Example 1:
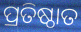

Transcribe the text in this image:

ପ୍ରତିଷ୍ଠାତ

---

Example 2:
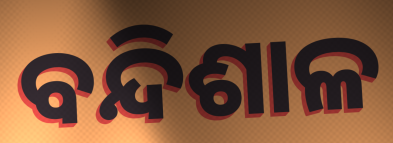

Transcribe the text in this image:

ବନ୍ଦିଶାଳ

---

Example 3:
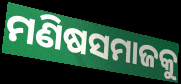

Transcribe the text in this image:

ମଣିଷସମାଜକୁ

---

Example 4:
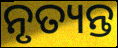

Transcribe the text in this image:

ନୃତ୍ୟନ୍ତ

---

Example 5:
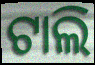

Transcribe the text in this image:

ଟାଲି